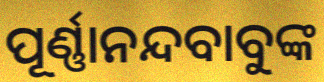
ପୂର୍ଣ୍ଣାନନ୍ଦବାବୁଙ୍କ